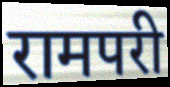
रामपरी